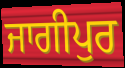
ਜਾਗੀਪੁਰ